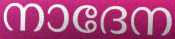
നാദേന